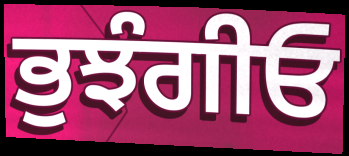
ਭੁਝੰਗੀਓ